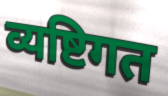
व्यष्टिगत